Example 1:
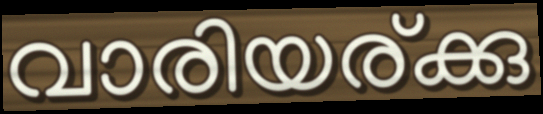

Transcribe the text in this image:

വാരിയര്ക്കു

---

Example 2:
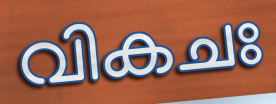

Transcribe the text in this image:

വികചഃ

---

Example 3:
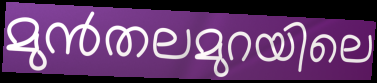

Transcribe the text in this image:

മുൻതലമുറയിലെ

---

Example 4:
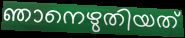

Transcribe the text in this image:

ഞാനെഴുതിയത്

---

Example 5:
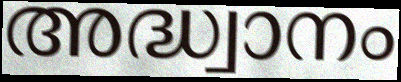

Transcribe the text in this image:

അദ്ധ്വാനം